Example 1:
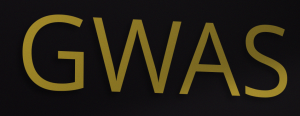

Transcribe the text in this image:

GWAS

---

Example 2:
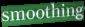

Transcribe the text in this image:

smoothing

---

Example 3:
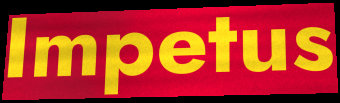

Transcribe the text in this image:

Impetus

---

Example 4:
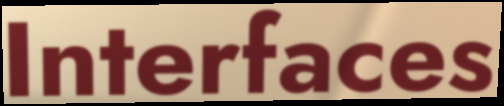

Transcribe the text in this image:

Interfaces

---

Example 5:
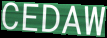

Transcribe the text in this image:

CEDAW